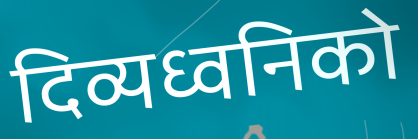
दिव्यध्वनिको